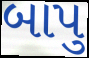
બાપુ